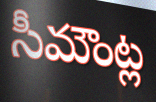
సీమౌంట్ల